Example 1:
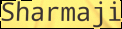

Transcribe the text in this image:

Sharmaji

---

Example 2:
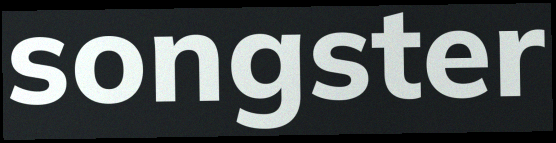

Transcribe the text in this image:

songster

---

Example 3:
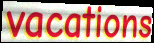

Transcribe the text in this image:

vacations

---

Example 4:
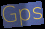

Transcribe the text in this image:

Gps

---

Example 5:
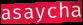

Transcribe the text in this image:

asaycha